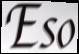
Eso